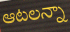
ఆటలన్నా